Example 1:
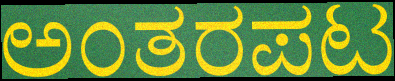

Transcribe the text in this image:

ಅಂತರಪಟ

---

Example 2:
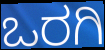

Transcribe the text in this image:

ಒರಗಿ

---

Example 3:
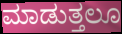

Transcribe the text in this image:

ಮಾಡುತ್ತಲೂ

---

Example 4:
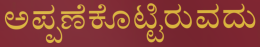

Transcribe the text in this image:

ಅಪ್ಪಣೆಕೊಟ್ಟಿರುವದು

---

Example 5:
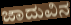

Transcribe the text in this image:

ಜಾದುವಿನ